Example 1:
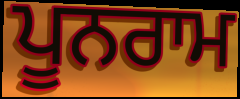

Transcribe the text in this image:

ਪੂਨਰਾਮ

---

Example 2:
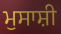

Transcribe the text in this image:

ਮੁਸਾਸ਼ੀ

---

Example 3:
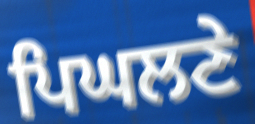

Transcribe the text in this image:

ਪਿਘਲਣੇ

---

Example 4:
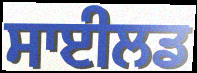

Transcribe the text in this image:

ਸਾਈਲਡ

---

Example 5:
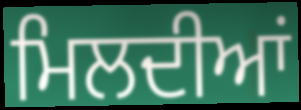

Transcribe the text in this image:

ਮਿਲਦੀਆਂ